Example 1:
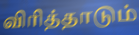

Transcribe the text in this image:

விரித்தாடும்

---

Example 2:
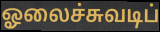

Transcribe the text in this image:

ஓலைச்சுவடிப்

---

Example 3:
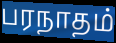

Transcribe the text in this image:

பரநாதம்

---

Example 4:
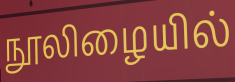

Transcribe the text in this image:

நூலிழையில்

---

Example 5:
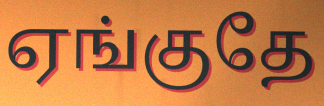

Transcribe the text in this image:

ஏங்குதே